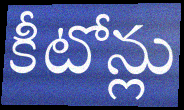
కీటోన్లు